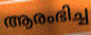
ആരംഭിച്ച